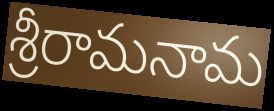
శ్రీరామనామ